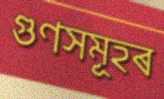
গুণসমূহৰ